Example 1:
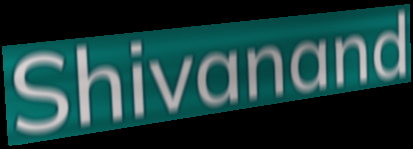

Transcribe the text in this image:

Shivanand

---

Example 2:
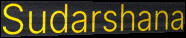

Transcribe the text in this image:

Sudarshana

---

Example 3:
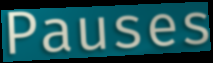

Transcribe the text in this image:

Pauses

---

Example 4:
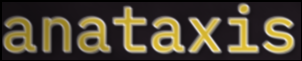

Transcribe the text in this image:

anataxis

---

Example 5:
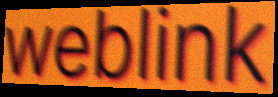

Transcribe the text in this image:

weblink